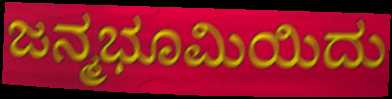
ಜನ್ಮಭೂಮಿಯಿದು